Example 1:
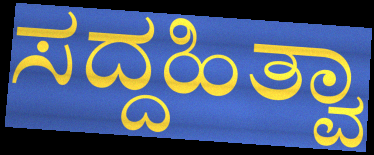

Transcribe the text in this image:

ಸದ್ದಹಿತ್ವಾ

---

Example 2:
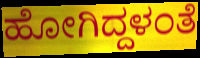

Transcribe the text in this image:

ಹೋಗಿದ್ದಳಂತೆ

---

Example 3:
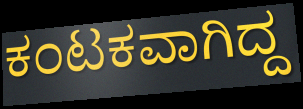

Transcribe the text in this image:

ಕಂಟಕವಾಗಿದ್ದ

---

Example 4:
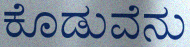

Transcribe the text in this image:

ಕೊಡುವೆನು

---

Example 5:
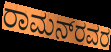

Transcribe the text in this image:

ರಾಮನ್‌ರವರ